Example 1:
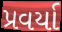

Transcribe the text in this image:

પ્રવર્યા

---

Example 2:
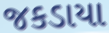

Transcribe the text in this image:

જકડાયા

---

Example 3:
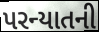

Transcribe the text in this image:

પરન્યાતની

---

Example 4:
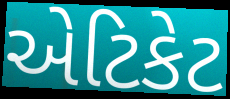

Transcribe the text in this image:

એટિકેટ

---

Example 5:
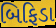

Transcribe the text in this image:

બિફિડા